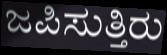
ಜಪಿಸುತ್ತಿರು